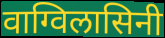
वाग्विलासिनी